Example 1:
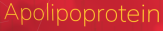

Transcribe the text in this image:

Apolipoprotein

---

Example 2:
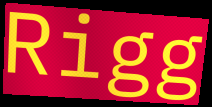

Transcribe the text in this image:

Rigg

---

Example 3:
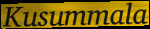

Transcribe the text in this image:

Kusummala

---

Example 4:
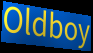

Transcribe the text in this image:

Oldboy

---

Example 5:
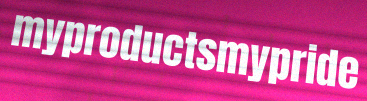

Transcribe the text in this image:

myproductsmypride